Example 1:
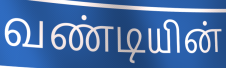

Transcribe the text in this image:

வண்டியின்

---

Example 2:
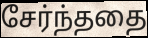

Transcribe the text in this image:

சேர்ந்ததை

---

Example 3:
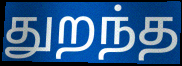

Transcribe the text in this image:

துறந்த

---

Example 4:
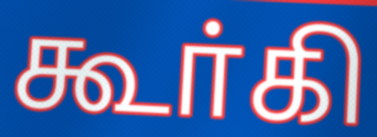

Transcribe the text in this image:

கூர்கி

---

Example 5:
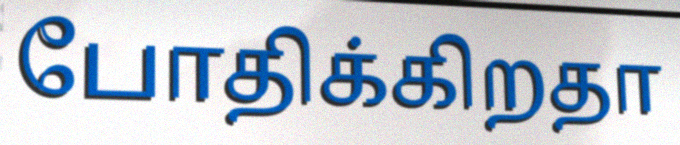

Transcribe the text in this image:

போதிக்கிறதா